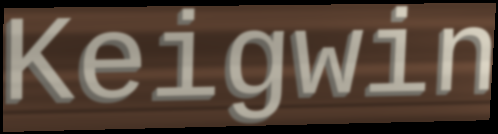
Keigwin